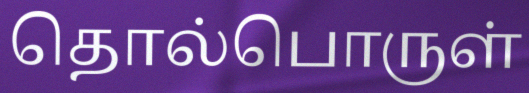
தொல்பொருள்